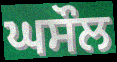
ਘਸੌਲ